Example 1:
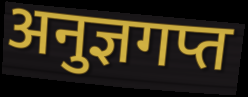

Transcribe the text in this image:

अनुज्ञगप्त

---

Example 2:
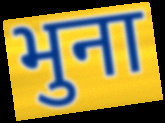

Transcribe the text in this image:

भुना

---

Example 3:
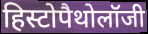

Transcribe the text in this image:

हिस्टोपैथोलॉजी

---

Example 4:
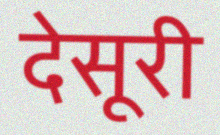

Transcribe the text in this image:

देसूरी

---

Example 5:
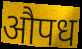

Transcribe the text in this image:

औपध